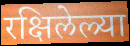
रक्षिलेल्या